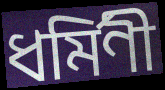
ধর্মিণী